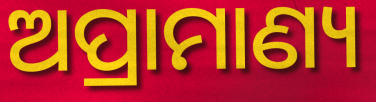
ଅପ୍ରାମାଣ୍ୟ